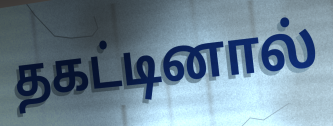
தகட்டினால்